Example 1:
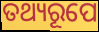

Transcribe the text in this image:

ତଥ୍ୟରୂପେ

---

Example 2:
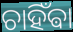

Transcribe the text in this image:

ଚାହିଁଵା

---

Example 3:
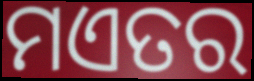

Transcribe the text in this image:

ମଏତର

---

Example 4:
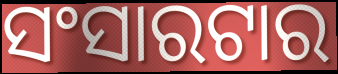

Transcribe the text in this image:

ସଂସାରଟାର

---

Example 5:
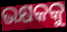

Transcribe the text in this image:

ଭକ୍ଷକକୁ